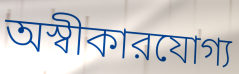
অস্বীকারযোগ্য